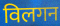
विलगन